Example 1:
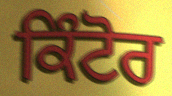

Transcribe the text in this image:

ਕਿੰਟੋਰ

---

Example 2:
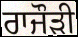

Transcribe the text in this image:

ਰਾਜੌੜੀ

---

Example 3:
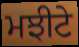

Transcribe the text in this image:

ਮਝੀਟੇ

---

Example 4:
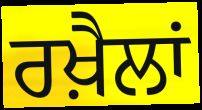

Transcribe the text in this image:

ਰਖ਼ੈਲਾਂ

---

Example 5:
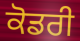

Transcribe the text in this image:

ਕੋਡਰੀ